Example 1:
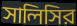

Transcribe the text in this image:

সালিসির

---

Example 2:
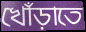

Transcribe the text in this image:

খোঁড়াতে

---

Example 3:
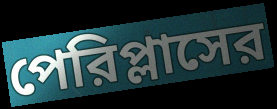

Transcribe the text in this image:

পেরিপ্লাসের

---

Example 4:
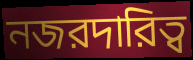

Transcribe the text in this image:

নজরদারিত্ব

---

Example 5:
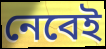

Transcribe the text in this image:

নেবেই